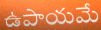
ఉపాయమే